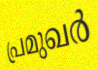
പ്രമുഖർ